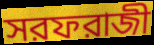
সরফরাজী